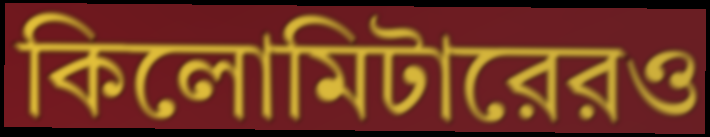
কিলোমিটারেরও